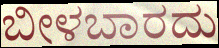
ಬೀಳಬಾರದು